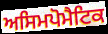
ਅਸਿਮਪੋਮੈਟਿਕ